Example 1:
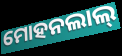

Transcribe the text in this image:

ମୋହନଲାଲ୍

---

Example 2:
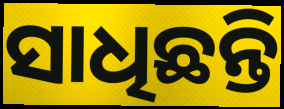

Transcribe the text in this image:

ସାଧିଛନ୍ତି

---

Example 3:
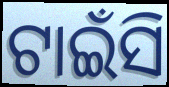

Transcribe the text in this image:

ଟାଇଁସି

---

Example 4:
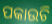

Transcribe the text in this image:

ପକାଉଚି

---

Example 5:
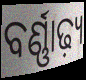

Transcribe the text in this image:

ବର୍ଣ୍ଣାଢ଼୍ୟ